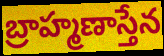
బ్రాహ్మణాస్తేన